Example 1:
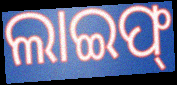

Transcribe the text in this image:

ଲାଇଫ୍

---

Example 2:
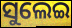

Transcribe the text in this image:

ସୁଲେଇ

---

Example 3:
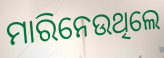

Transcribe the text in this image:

ମାରିନେଉଥିଲେ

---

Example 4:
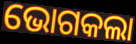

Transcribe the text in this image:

ଭୋଗକଲା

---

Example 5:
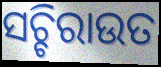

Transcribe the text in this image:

ସଚ୍ଚିରାଉତ